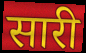
सारी